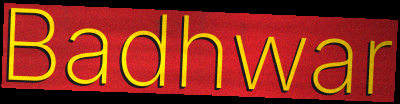
Badhwar